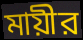
মায়ীর